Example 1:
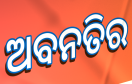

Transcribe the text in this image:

ଅବନତିର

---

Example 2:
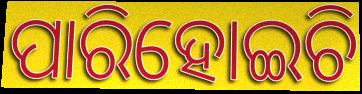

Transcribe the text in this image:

ପାରିହୋଇଚି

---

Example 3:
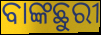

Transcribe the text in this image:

ବାଙ୍କଛୁରୀ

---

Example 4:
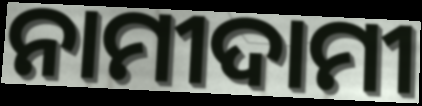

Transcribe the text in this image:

ନାମୀଦାମୀ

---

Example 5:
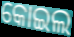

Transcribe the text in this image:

କୋଇଲ